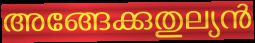
അങ്ങേക്കുതുല്യൻ